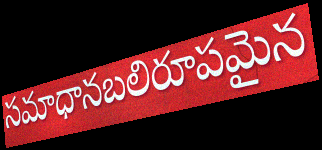
సమాధానబలిరూపమైన